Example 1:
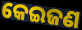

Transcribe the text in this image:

କେଇଜଣ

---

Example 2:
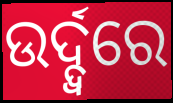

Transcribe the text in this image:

ଉର୍ଦ୍ଦ୍ୱରେ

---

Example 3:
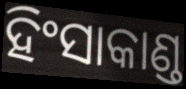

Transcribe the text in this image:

ହିଂସାକାଣ୍ଡ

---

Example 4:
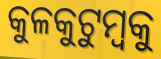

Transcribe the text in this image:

କୁଳକୁଟୁମ୍ବକୁ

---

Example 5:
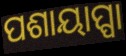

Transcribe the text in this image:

ପଶାୟାପ୍ପା